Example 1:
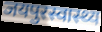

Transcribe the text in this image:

जयपुरस्वास्थ्य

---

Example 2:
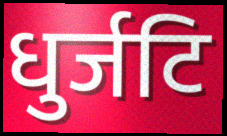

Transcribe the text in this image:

धुर्जटि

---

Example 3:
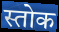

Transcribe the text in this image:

स्तोक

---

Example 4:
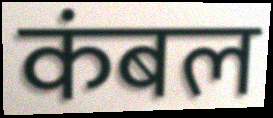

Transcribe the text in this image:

कंबल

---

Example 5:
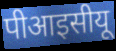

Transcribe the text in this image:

पीआइसीयू